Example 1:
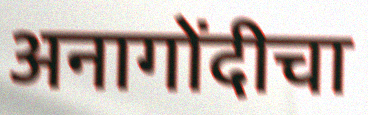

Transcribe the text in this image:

अनागोंदीचा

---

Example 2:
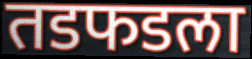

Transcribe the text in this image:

तडफडला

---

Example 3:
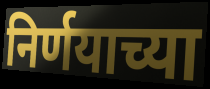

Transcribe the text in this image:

निर्णयाच्या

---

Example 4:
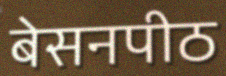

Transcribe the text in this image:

बेसनपीठ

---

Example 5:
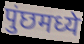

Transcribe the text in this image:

पुंछमध्ये